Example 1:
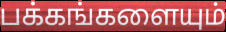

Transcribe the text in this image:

பக்கங்களையும்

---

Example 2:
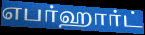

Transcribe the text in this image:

எபர்ஹார்ட்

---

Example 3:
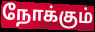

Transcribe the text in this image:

நோக்கும்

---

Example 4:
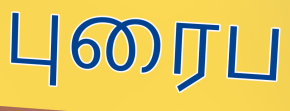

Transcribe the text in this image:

புரைப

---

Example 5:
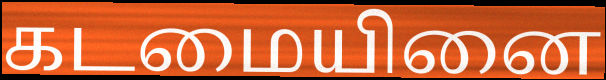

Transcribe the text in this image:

கடமையினை